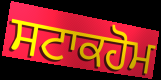
ਸਟਾਕਹੋਮ